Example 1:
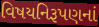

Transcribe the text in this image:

વિષયનિરૂપણનાં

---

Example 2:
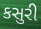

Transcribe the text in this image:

કસુરી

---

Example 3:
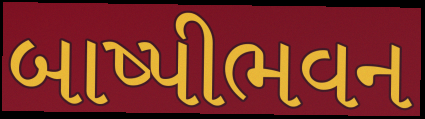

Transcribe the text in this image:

બાષ્પીભવન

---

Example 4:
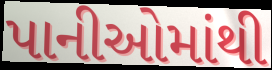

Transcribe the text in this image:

પાનીઓમાંથી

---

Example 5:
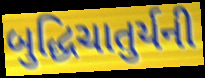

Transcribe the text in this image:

બુદ્ધિચાતુર્યની